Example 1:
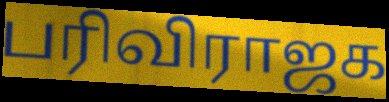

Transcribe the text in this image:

பரிவிராஜக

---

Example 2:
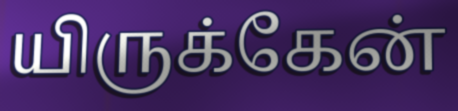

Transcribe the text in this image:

யிருக்கேன்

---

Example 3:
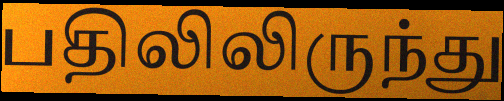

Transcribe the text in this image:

பதிலிலிருந்து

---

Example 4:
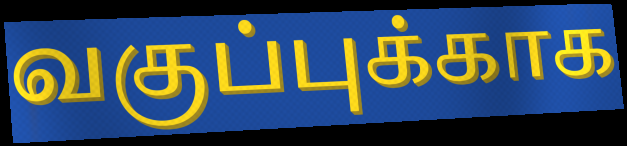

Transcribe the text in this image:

வகுப்புக்காக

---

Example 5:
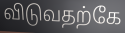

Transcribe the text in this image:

விடுவதற்கே